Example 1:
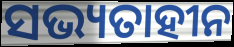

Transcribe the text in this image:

ସଭ୍ୟତାହୀନ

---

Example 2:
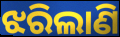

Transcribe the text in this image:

ଝରିଲାଣି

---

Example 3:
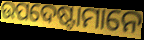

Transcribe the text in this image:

ଉପଦେଷ୍ଟାମାନେ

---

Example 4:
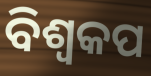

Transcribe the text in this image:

ବିଶ୍ବକପ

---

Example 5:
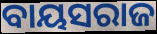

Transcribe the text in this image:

ବାୟସରାଜ